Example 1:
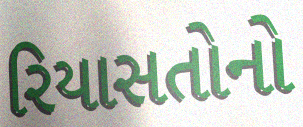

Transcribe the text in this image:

રિયાસતોનો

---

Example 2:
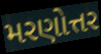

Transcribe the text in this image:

મરણોત્તર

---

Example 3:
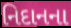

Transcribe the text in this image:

નિદાનના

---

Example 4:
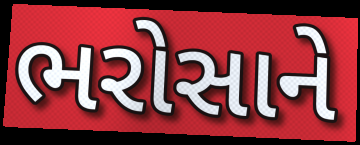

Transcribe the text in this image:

ભરોસાને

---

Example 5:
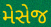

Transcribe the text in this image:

મેસેજ